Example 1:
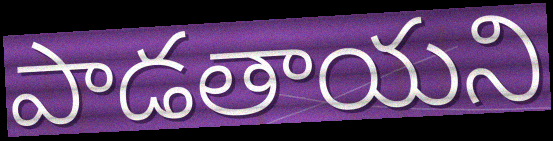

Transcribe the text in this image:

పాడతాయని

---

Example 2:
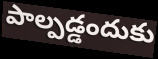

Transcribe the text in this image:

పాల్పడ్డందుకు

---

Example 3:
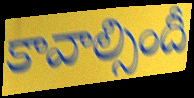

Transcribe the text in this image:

కావాల్సిందీ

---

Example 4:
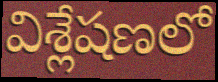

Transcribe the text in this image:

విశ్లేషణలో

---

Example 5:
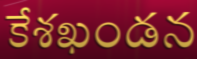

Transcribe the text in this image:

కేశఖండన